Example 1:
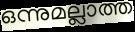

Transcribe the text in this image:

ഒന്നുമല്ലാത്ത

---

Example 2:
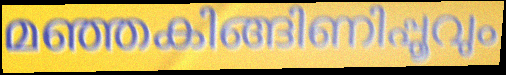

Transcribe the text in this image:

മഞ്ഞകിങ്ങിണിപ്പൂവും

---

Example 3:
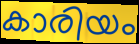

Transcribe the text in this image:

കാരിയം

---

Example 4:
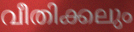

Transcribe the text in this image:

വീതിക്കലും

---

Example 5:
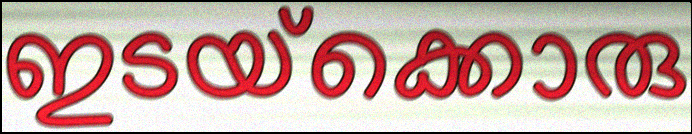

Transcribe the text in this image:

ഇടയ്‌ക്കൊരു